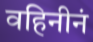
वहिनीनं